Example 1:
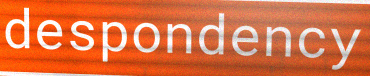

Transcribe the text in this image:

despondency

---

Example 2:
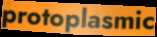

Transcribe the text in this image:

protoplasmic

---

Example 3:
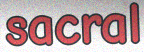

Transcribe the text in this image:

sacral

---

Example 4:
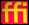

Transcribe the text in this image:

ffi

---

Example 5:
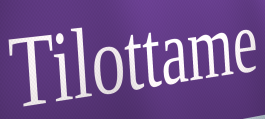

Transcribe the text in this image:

Tilottame